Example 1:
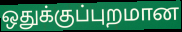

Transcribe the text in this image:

ஒதுக்குப்புறமான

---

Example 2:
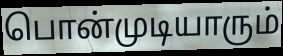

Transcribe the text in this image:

பொன்முடியாரும்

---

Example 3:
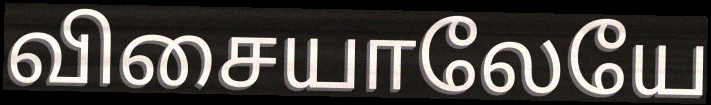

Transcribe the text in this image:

விசையாலேயே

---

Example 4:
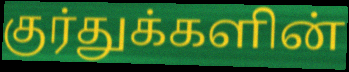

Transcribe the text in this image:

குர்துக்களின்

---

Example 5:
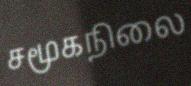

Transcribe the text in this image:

சமூகநிலை